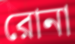
রোনা